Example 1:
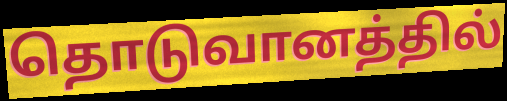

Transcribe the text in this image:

தொடுவானத்தில்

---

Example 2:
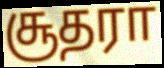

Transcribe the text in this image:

சூதரா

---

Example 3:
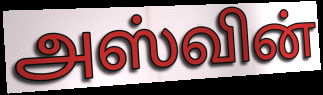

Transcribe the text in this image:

அஸ்வின்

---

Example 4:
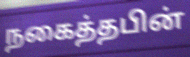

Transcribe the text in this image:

நகைத்தபின்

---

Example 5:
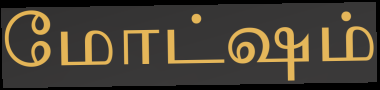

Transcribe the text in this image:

மோட்ஷம்